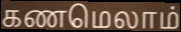
கணமெலாம்